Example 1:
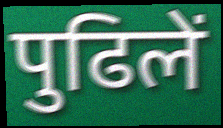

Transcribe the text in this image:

पुढिलें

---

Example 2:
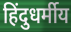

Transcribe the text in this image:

हिंदुधर्मीय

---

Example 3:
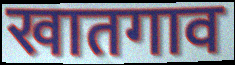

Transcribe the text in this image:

खातगाव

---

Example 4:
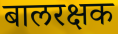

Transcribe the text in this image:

बालरक्षक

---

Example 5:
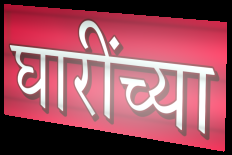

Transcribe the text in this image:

घारींच्या